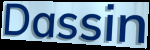
Dassin